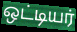
ஒட்டியர்